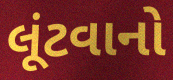
લૂંટવાનો